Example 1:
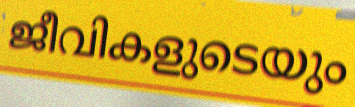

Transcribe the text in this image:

ജീവികളുടെയും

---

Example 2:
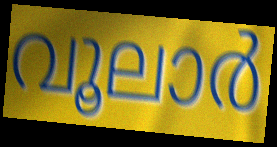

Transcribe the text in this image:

വൂലാർ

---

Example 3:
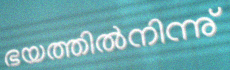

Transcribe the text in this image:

ഭയത്തിൽനിന്നു്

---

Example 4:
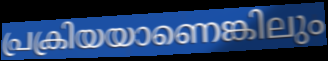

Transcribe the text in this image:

പ്രക്രിയയാണെങ്കിലും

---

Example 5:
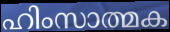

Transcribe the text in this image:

ഹിംസാത്മക